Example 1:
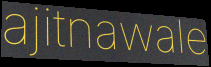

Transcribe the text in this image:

ajitnawale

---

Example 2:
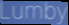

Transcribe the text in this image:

Lumby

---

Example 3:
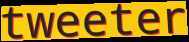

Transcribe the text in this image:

tweeter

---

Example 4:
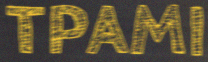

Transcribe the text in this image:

TPAMI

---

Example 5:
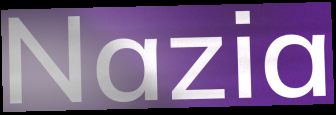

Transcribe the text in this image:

Nazia